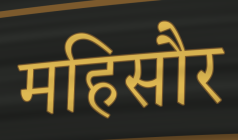
महिसौर